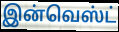
இன்வெஸ்ட்